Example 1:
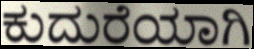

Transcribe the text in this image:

ಕುದುರೆಯಾಗಿ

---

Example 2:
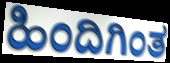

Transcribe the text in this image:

ಹಿಂದಿಗಿಂತ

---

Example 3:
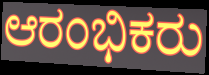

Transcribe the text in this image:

ಆರಂಭಿಕರು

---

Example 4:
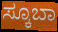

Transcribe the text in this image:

ಸ್ಕೂಬಾ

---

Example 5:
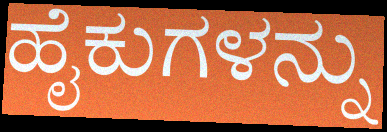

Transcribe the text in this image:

ಹೈಕುಗಳನ್ನು